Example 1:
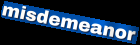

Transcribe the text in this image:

misdemeanor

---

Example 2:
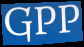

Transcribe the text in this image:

GPP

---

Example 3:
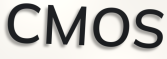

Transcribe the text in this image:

CMOS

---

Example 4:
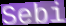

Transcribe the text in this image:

Sebi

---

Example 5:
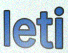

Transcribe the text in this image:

leti